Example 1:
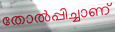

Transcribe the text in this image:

തോൽപ്പിച്ചാണ്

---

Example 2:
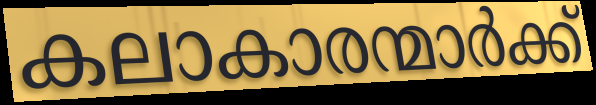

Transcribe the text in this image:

കലാകാരന്മാർക്ക്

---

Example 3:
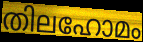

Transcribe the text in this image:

തിലഹോമം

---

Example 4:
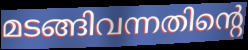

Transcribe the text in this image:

മടങ്ങിവന്നതിന്റെ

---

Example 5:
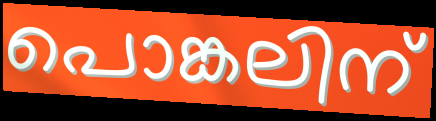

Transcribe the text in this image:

പൊങ്കലിന്